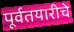
पूर्वतयारीचे